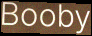
Booby